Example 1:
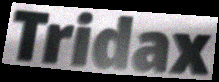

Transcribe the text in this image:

Tridax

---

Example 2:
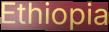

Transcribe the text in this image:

Ethiopia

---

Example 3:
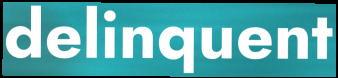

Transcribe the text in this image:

delinquent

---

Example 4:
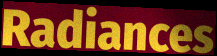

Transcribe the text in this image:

Radiances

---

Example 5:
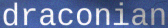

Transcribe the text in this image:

draconian